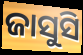
ଜାସୁସି